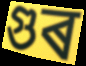
গুৰ